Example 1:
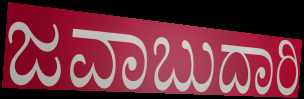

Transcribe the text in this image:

ಜವಾಬುದಾರಿ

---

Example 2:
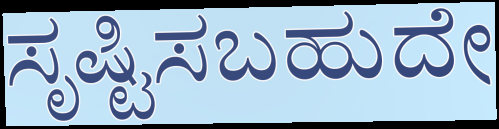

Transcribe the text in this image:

ಸೃಷ್ಟಿಸಬಹುದೇ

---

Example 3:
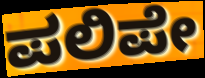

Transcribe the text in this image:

ಪಲಿಪೇ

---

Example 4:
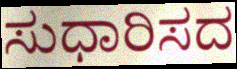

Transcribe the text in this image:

ಸುಧಾರಿಸದ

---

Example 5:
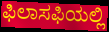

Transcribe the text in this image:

ಫಿಲಾಸಫಿಯಲ್ಲಿ